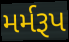
મર્મરૂપ